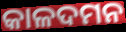
କାଳଦମନ